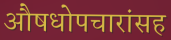
औषधोपचारांसह